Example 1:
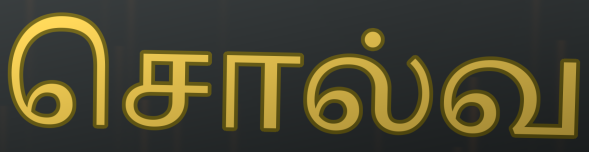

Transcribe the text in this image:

சொல்வ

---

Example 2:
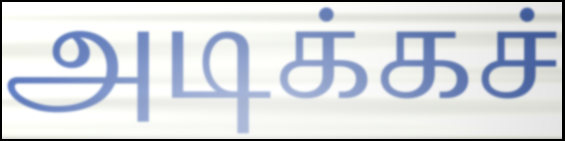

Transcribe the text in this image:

அடிக்கச்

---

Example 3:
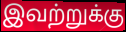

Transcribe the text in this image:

இவற்றுக்கு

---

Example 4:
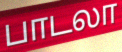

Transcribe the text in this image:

பாடலா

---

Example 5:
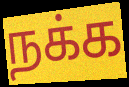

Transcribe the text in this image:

நக்க